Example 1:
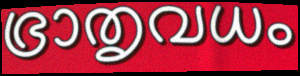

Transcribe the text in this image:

ഭ്രാതൃവധം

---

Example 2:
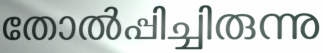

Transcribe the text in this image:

തോൽപ്പിച്ചിരുന്നു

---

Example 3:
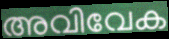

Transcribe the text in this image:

അവിവേക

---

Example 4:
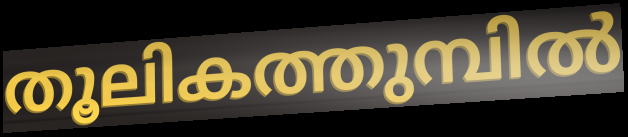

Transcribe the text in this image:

തൂലികത്തുമ്പിൽ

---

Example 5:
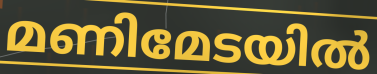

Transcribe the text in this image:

മണിമേടയിൽ